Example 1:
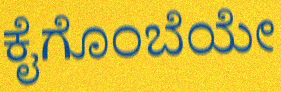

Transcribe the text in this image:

ಕೈಗೊಂಬೆಯೇ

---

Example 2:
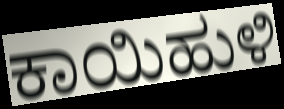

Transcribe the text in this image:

ಕಾಯಿಹುಳಿ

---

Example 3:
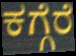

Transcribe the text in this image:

ಕಗ್ಗೆರೆ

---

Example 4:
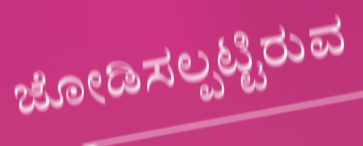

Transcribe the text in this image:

ಜೋಡಿಸಲ್ಪಟ್ಟಿರುವ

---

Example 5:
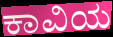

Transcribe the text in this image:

ಕಾವಿಯ